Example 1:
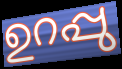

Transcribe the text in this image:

ഉറപ്പു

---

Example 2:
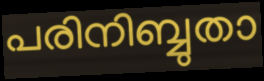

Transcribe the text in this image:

പരിനിബ്ബുതാ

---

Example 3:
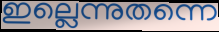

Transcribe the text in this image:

ഇല്ലെന്നുതന്നെ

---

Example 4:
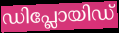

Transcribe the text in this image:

ഡിപ്ലോയിഡ്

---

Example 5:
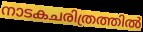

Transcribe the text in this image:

നാടകചരിത്രത്തിൽ